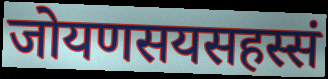
जोयणसयसहस्सं